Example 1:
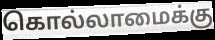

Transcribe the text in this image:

கொல்லாமைக்கு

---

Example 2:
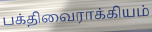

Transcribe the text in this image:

பக்திவைராக்கியம்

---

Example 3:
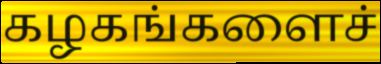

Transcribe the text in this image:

கழகங்களைச்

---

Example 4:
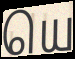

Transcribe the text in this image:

யெ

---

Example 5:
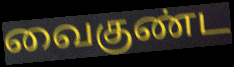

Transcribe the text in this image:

வைகுண்ட